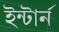
ইন্টার্ন